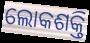
ଲୋକଶକ୍ତି